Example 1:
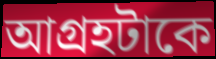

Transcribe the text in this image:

আগ্রহটাকে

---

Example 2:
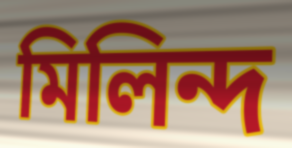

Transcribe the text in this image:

মিলিন্দ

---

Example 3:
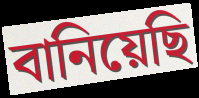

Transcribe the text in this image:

বানিয়েছি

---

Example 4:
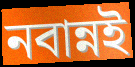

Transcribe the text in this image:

নবান্নই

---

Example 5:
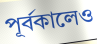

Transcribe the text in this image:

পূর্বকালেও